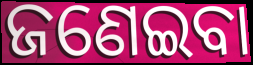
ଜଣେଇବା